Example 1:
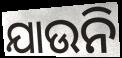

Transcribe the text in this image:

ଯାଉନି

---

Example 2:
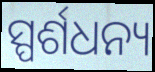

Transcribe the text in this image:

ସ୍ପର୍ଶଧନ୍ୟ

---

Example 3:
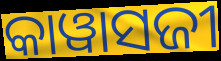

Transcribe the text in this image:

କାୱାସଜୀ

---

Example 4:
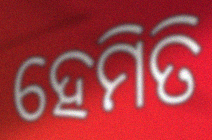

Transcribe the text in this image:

ହେମିତି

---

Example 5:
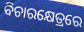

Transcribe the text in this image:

ବିଚାରକ୍ଷେତ୍ରରେ